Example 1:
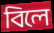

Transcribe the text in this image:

বিলে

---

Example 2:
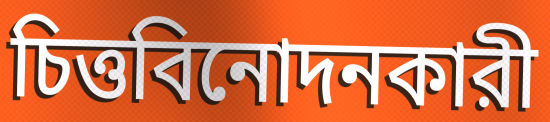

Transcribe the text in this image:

চিত্তবিনোদনকারী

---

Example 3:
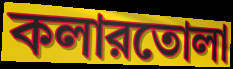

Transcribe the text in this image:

কলারতোলা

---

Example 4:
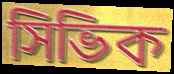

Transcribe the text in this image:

সিভিক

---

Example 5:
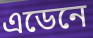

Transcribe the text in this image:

এডেনে